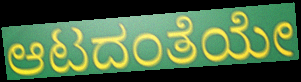
ಆಟದಂತೆಯೇ